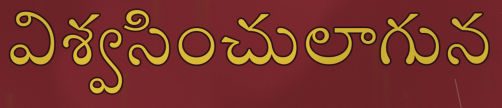
విశ్వసించులాగున